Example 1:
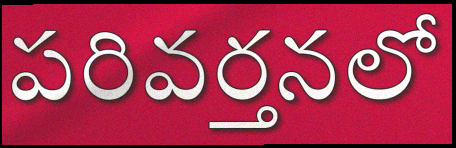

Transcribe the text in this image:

పరివర్తనలో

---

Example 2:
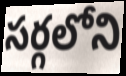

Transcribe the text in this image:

సర్గలోని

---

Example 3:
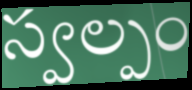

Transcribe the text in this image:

స్వల్పం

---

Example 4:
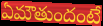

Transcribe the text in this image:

ఏమౌతుందంటే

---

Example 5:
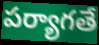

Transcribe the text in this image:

పర్యాగతే